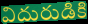
విదురుడికి